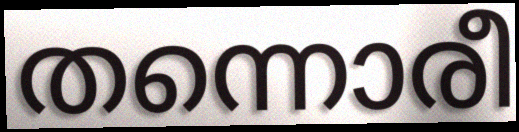
തന്നൊരീ